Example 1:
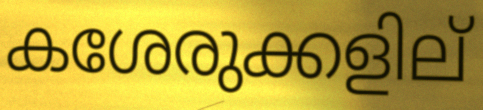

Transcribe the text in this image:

കശേരുക്കളില്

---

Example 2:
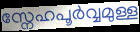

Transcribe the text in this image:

സ്നേഹപൂർവ്വമുള്ള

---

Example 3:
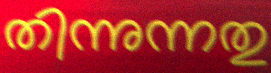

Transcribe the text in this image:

തിന്നുന്നതു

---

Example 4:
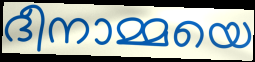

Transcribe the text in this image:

ദീനാമ്മയെ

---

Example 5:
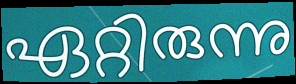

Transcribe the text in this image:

ഏറ്റിരുന്നു